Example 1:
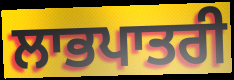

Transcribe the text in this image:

ਲਾਭਪਾਤਰੀ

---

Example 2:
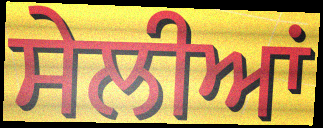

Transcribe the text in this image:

ਸੇਲੀਆਂ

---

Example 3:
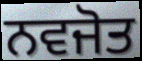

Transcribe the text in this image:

ਨਵਜੋਤ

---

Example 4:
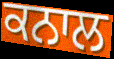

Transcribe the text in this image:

ਕਨਾਲ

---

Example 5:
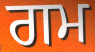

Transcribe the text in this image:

ਗਮ